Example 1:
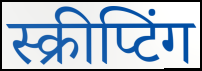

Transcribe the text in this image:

स्क्रीप्टिंग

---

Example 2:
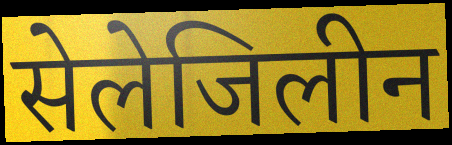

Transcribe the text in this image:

सेलेजिलीन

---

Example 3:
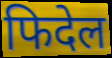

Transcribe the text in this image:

फिदेल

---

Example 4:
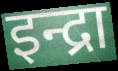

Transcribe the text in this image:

इन्द्रा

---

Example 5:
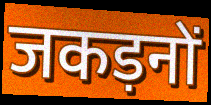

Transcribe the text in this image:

जकड़नों